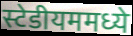
स्टेडीयममध्ये